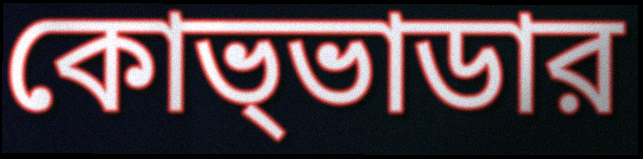
কোভ্ভাডার